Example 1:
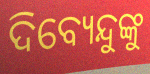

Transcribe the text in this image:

ଦିବ୍ୟେନ୍ଦୁଙ୍କୁ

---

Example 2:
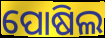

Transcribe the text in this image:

ପୋଷିଲ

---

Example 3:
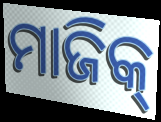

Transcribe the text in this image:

ମାଜିକ୍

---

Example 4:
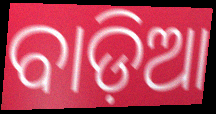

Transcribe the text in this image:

ବାଡ଼ିଆ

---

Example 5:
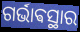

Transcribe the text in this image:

ଗର୍ଭାଵସ୍ଥାର